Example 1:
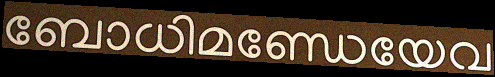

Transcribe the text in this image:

ബോധിമണ്ഡേയേവ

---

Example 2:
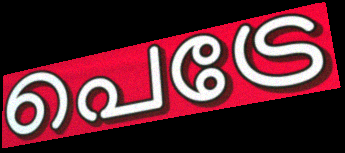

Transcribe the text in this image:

പെട്രേ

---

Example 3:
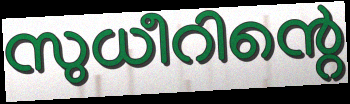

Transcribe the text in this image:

സുധീറിന്റെ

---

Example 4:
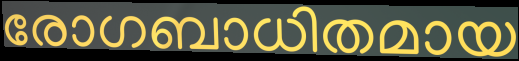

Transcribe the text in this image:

രോഗബാധിതമായ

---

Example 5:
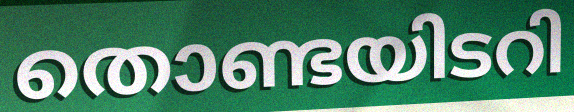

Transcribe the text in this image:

തൊണ്ടയിടറി